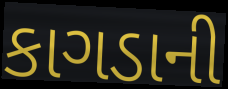
કાગડાની